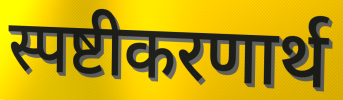
स्पष्टीकरणार्थ